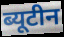
ब्यूटीन